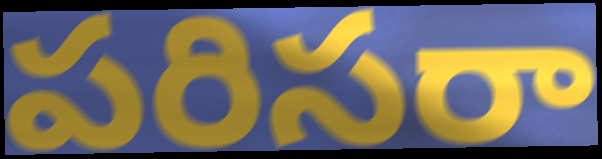
పరిసరా